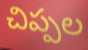
చిప్పల